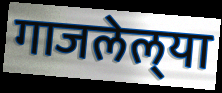
गाजलेल्या